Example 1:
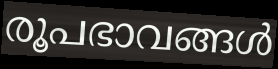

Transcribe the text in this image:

രൂപഭാവങ്ങൾ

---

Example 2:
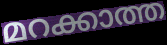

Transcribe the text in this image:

മറക്കാത്ത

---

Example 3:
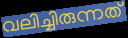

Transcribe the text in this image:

വലിച്ചിരുന്നത്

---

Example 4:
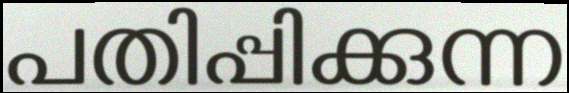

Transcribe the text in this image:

പതിപ്പിക്കുന്ന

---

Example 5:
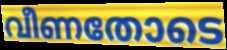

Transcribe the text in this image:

വീണതോടെ